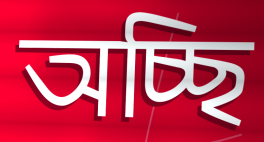
অচ্ছি